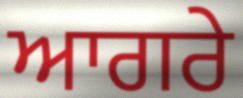
ਆਗਰੇ